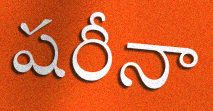
షరీనా